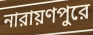
নারায়ণপুরে